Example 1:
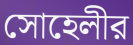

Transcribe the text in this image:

সোহেলীর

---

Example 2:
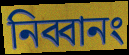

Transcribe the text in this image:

নিব্বানং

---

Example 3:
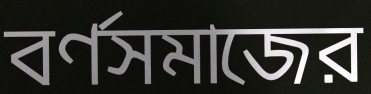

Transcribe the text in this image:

বর্ণসমাজের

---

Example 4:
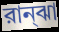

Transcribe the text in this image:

রান্ঝা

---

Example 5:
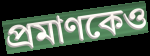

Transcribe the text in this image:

প্রমাণকেও